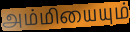
அம்மியையும்